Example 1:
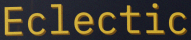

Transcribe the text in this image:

Eclectic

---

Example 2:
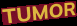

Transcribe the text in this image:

TUMOR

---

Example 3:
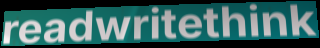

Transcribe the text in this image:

readwritethink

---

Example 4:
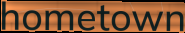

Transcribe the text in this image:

hometown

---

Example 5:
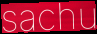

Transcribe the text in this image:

sachu